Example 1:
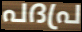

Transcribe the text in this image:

പദപ്ര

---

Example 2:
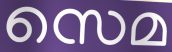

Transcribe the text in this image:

സെമ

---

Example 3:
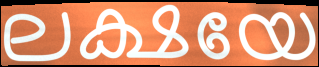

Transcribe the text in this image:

ലക്ഷയേ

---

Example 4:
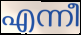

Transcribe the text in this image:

എന്നീ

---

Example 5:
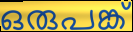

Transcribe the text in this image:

ഒരുപങ്ക്